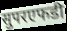
सुपरएफडी